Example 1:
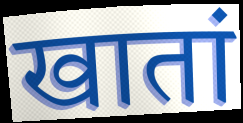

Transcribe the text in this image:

खातां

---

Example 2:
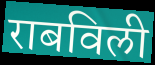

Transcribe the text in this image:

राबविली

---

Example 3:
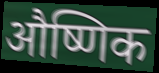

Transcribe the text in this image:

औष्णिक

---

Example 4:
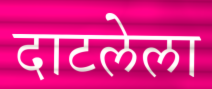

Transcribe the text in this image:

दाटलेला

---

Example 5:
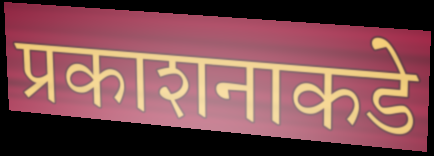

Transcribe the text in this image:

प्रकाशनाकडे